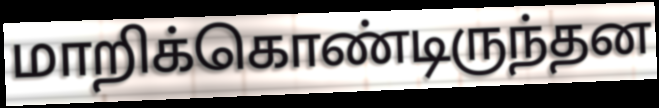
மாறிக்கொண்டிருந்தன